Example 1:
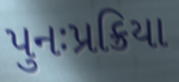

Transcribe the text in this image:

પુનઃપ્રક્રિયા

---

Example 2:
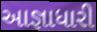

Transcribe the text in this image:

આજ્ઞાધારી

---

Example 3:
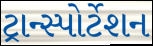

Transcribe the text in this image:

ટ્રાન્સ્પોર્ટેશન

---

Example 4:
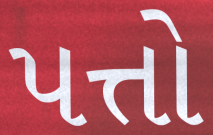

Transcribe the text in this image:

પત્તો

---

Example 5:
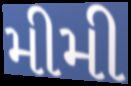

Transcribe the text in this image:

મીમી